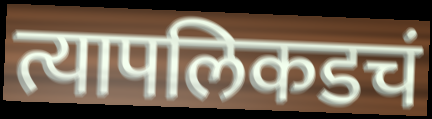
त्यापलिकडचं